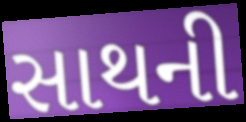
સાથની